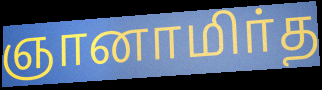
ஞானாமிர்த